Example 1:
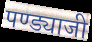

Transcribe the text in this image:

पण्ड्याजी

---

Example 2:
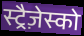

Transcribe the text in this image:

स्ट्रैज़ेस्को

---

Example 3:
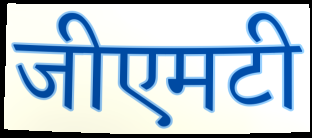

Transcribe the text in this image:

जीएमटी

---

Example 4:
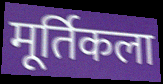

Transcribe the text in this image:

मूर्तिकला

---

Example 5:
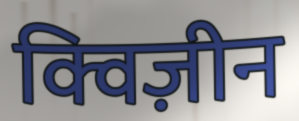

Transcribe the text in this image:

क्विज़ीन